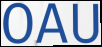
OAU